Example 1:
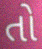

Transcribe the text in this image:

તો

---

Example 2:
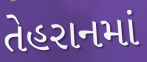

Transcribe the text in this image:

તેહરાનમાં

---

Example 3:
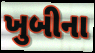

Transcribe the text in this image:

ખુબીના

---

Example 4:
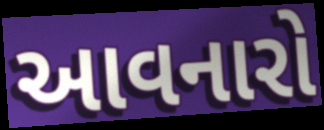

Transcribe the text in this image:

આવનારો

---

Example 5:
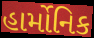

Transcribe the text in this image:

હાર્મોનિક